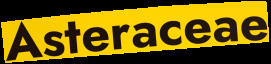
Asteraceae